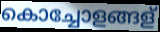
കൊച്ചോളങ്ങള്